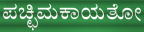
ಪಚ್ಛಿಮಕಾಯತೋ